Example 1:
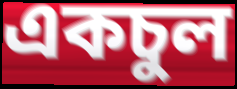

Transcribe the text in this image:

একচুল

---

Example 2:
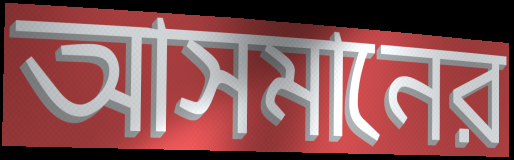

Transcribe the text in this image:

আসমানের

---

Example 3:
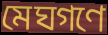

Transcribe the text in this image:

মেঘগণে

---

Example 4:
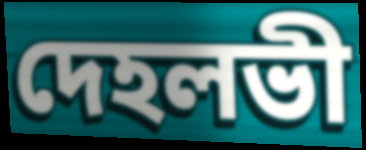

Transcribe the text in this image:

দেহলভী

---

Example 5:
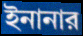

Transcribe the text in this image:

ইনানার